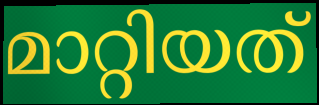
മാറ്റിയത്